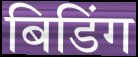
बिडिंग